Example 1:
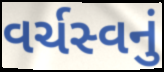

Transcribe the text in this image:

વર્ચસ્વનું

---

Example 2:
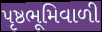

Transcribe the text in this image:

પૃષ્ઠભૂમિવાળી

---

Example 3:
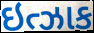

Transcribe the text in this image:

ઇત્ઝાક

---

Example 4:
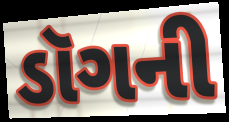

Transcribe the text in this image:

ડૉગની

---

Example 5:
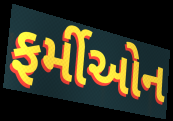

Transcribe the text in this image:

ફર્મીઓન